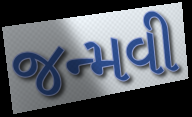
જન્મવી